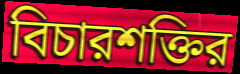
বিচারশক্তির